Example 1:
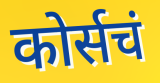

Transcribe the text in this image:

कोर्सचं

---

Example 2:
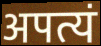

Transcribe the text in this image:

अपत्यं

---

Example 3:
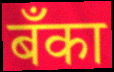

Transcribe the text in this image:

बँका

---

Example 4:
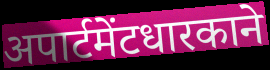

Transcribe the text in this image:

अपार्टमेंटधारकाने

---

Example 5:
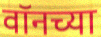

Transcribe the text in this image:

वॉनच्या